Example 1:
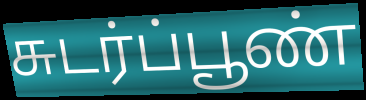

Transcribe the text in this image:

சுடர்ப்பூண்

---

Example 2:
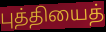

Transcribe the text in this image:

புத்தியைத்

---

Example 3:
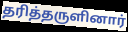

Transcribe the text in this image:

தரித்தருளினார்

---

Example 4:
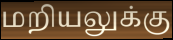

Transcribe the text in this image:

மறியலுக்கு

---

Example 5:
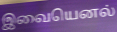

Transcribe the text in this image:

இவையெனல்